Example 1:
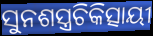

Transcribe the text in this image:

ସୁନଶସ୍ତ୍ରଚିକିତ୍ସାୟୀ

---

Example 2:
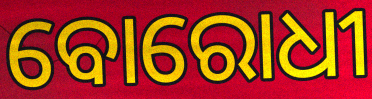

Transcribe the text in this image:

ବୋରୋଧୀ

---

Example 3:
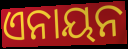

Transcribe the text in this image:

ଏନାୟନ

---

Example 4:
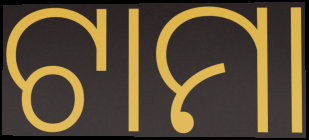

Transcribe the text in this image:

ଟାମା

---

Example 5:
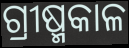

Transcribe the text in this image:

ଗ୍ରୀଷ୍ମକାଳ